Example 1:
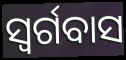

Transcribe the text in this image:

ସ୍ଵର୍ଗବାସ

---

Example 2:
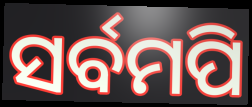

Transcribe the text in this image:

ସର୍ବମପି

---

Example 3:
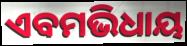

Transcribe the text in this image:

ଏବମଭିଧାୟ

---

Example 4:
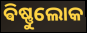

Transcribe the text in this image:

ଵିଷ୍ଣୁଲୋକ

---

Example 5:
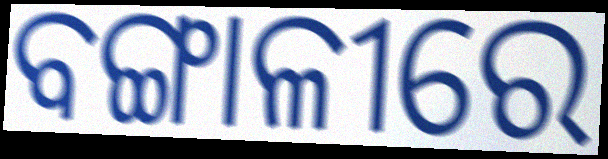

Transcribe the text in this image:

ବଙ୍ଗାଳୀରେ